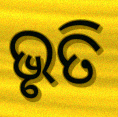
ଭୃତି